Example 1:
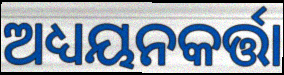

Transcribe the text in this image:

ଅଧ୍ୟୟନକର୍ତ୍ତା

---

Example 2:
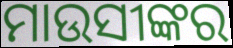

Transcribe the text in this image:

ମାଉସୀଙ୍କର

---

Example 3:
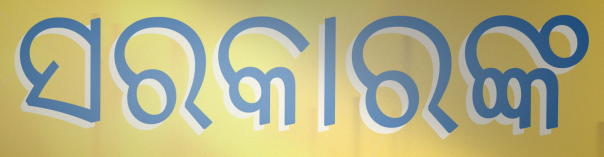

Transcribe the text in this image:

ସରକାରଙ୍କ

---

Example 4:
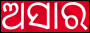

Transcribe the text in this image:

ଅସାର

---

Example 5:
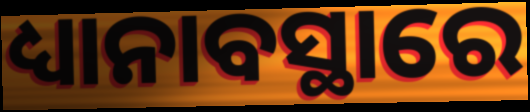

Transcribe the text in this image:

ଧ୍ୟାନାବସ୍ଥାରେ